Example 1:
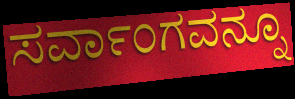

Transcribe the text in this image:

ಸರ್ವಾಂಗವನ್ನೂ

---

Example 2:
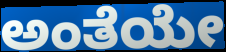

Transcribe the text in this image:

ಅಂತೆಯೇ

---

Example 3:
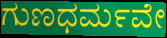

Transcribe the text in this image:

ಗುಣಧರ್ಮವೇ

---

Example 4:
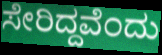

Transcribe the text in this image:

ಸೇರಿದ್ದವೆಂದು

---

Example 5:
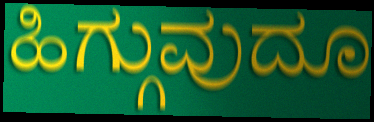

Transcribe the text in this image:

ಹಿಗ್ಗುವುದೂ